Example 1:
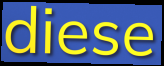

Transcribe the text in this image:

diese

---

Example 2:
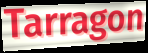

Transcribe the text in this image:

Tarragon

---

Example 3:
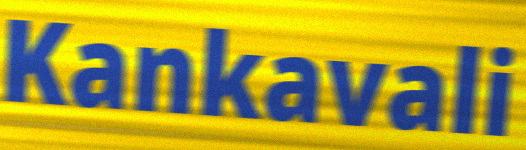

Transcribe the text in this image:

Kankavali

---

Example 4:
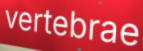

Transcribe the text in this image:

vertebrae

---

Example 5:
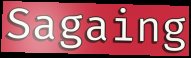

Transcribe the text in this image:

Sagaing